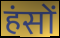
हंसों